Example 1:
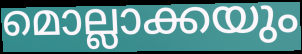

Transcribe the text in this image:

മൊല്ലാക്കയും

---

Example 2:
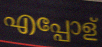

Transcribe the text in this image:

എപ്പോള്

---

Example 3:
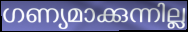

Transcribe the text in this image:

ഗണ്യമാക്കുന്നില്ല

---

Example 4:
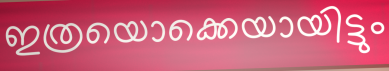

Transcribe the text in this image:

ഇത്രയൊക്കെയായിട്ടും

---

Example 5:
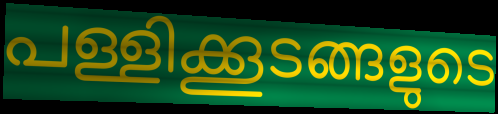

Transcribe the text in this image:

പള്ളിക്കൂടങ്ങളുടെ